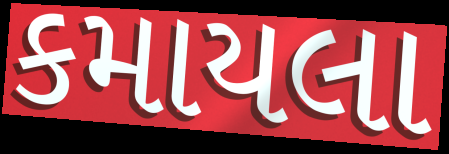
કમાયલા